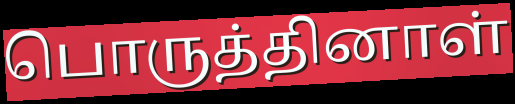
பொருத்தினாள்